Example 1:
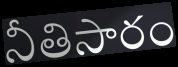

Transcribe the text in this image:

నీతిసారం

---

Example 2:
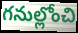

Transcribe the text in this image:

గనుల్లోంచి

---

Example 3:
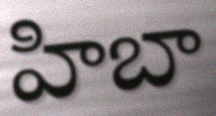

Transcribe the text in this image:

హిబా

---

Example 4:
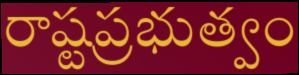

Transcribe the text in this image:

రాష్టప్రభుత్వం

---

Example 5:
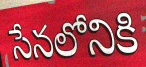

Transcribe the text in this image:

సేనలోనికి